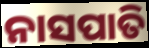
ନାସପାତି